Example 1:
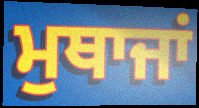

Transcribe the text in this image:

ਮੁਥਾਜਾਂ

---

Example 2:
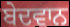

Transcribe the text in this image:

ਬੇਦਵਾਨ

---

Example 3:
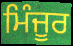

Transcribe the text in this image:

ਮਿੰਜੂਰ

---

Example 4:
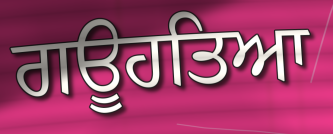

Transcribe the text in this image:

ਗਊਹਤਿਆ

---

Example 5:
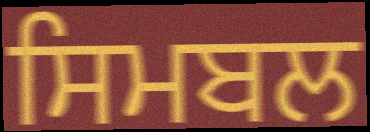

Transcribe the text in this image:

ਸਿਮਬਲ